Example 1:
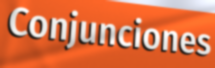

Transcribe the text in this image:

Conjunciones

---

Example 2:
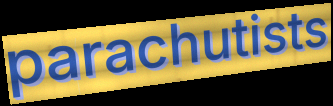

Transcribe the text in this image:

parachutists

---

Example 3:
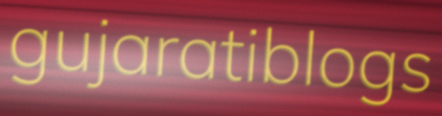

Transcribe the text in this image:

gujaratiblogs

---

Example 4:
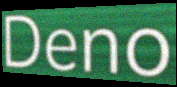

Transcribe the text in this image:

Deno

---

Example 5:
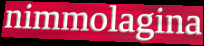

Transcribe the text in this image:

nimmolagina